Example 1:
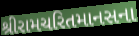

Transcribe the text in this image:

શ્રીરામચરિતમાનસના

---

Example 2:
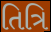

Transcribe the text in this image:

તિત્રિ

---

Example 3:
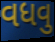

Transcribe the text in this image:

વધવુ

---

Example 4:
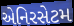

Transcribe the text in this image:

એનિરસેટમ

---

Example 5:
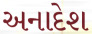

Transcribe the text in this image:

અનાદેશ